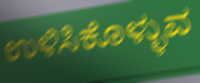
ಉಳಿಸಿಕೊಳ್ಳುವ